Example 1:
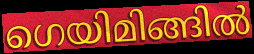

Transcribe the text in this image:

ഗെയിമിങ്ങിൽ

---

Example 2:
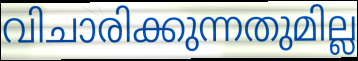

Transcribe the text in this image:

വിചാരിക്കുന്നതുമില്ല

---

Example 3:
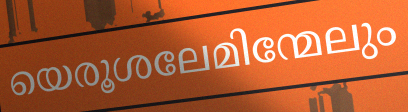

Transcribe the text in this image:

യെരൂശലേമിന്മേലും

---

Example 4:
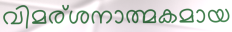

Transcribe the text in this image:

വിമര്ശനാത്മകമായ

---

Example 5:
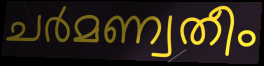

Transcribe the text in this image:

ചർമണ്വതീം